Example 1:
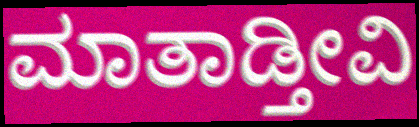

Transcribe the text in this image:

ಮಾತಾಡ್ತೀವಿ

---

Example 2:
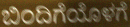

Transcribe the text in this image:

ಬಿಂದಿಗೆಯೊಳಗೆ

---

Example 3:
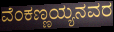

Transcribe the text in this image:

ವೆಂಕಣ್ಣಯ್ಯನವರ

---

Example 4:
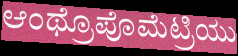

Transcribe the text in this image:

ಆಂಥ್ರೊಪೊಮೆಟ್ರಿಯು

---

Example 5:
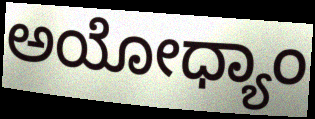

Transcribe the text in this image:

ಅಯೋಧ್ಯಾಂ